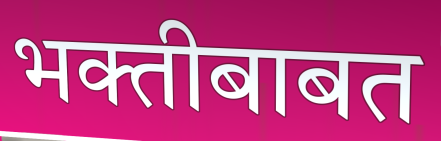
भक्तीबाबत